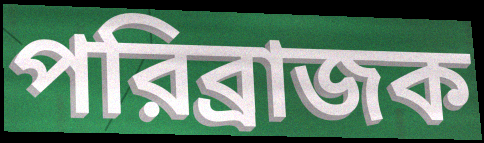
পরিব্রাজক